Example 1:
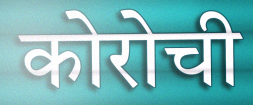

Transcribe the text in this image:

कोरोची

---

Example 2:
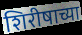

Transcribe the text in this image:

शिरीषाच्या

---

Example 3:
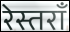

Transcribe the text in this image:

रेस्तराँ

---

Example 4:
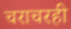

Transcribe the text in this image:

चराचरही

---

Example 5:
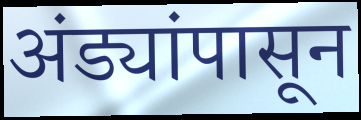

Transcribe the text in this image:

अंड्यांपासून